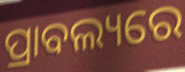
ପ୍ରାବଲ୍ୟରେ